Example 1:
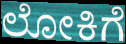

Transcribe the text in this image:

ಲೋಕಿಗೆ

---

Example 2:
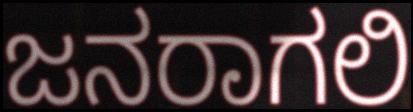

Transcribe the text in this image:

ಜನರಾಗಲಿ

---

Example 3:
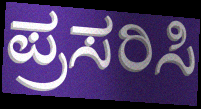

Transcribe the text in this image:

ಪ್ರಸರಿಸಿ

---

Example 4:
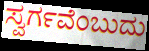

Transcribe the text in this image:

ಸ್ವರ್ಗವೆಂಬುದು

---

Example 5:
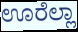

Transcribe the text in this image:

ಊರೆಲ್ಲಾ